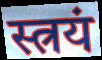
स्त्रयं